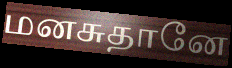
மனசுதானே